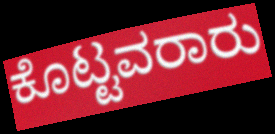
ಕೊಟ್ಟವರಾರು